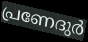
പ്രണേദുർ